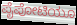
ಪೈಪೋಟಿಯೂ